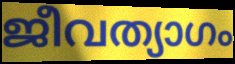
ജീവത്യാഗം